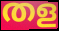
തള